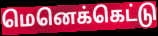
மெனெக்கெட்டு